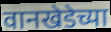
वानखेडेच्या